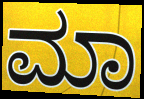
ಮಾ